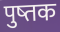
पुष्तक